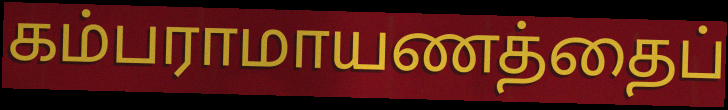
கம்பராமாயணத்தைப்